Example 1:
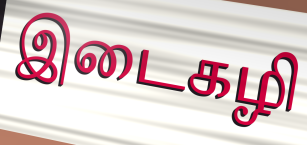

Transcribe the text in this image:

இடைகழி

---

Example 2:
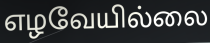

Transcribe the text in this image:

எழவேயில்லை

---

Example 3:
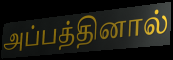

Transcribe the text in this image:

அப்பத்தினால்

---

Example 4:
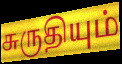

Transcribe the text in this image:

சுருதியும்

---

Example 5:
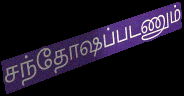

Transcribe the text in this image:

சந்தோஷப்படணும்